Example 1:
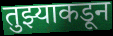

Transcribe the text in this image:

तुझ्याकडून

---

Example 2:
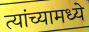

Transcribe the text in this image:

त्यांच्यामध्ये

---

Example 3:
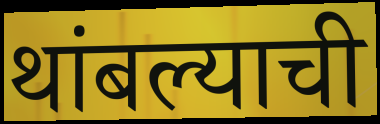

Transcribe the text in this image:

थांबल्याची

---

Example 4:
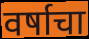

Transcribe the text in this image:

वर्षाचा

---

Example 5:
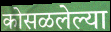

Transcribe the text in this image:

कोसळलेल्या